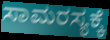
ಸಾಮರಸ್ಯಕ್ಕೆ